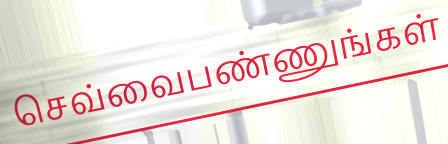
செவ்வைபண்ணுங்கள்